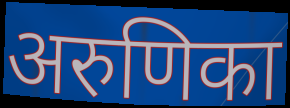
अरुणिका